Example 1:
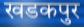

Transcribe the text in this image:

खडकपुर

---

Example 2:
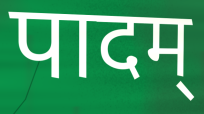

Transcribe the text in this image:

पादम्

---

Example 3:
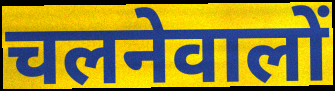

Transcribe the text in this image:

चलनेवालों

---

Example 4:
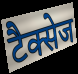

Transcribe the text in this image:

टैक्सेज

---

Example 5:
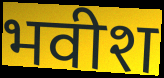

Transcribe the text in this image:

भवीश